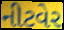
નીટવેર